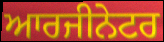
ਆਰਜੀਨੇਟਰ